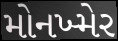
મોનખ્મેર